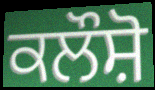
ਕਲੌਸ਼ੋ